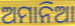
ଅମାନିଆ